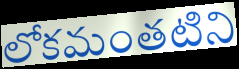
లోకమంతటిని